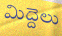
మిద్దెలు